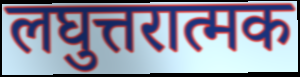
लघुत्तरात्मक